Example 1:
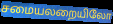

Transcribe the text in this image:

சமையலறையிலோ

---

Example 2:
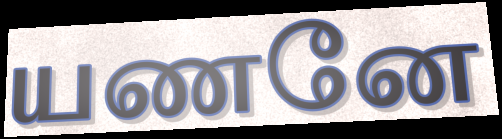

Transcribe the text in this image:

யணனே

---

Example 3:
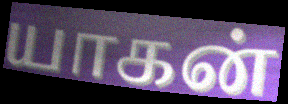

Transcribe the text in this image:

யாகன்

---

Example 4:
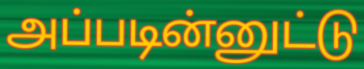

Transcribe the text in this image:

அப்படின்னுட்டு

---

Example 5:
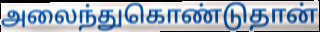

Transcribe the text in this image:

அலைந்துகொண்டுதான்